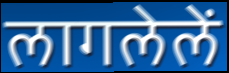
लागलेलें